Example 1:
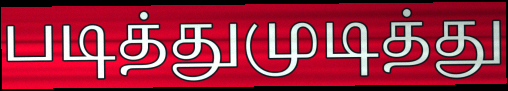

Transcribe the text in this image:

படித்துமுடித்து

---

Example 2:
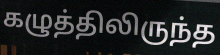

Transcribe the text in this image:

கழுத்திலிருந்த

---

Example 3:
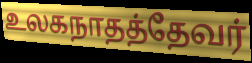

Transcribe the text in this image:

உலகநாதத்தேவர்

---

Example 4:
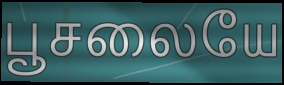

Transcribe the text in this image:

பூசலையே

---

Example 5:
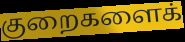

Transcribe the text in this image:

குறைகளைக்